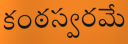
కంఠస్వరమే